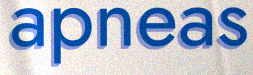
apneas